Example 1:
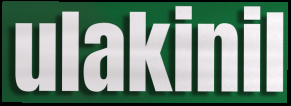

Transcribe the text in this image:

ulakinil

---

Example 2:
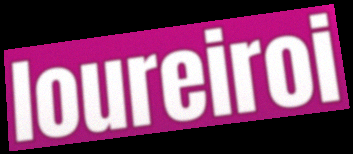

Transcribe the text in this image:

loureiroi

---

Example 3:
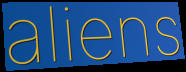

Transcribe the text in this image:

aliens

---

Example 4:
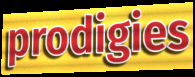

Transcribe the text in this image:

prodigies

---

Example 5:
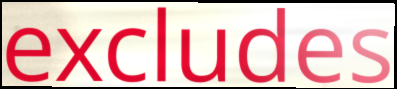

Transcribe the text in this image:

excludes